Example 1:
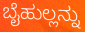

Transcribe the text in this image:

ಬೈಹುಲ್ಲನ್ನು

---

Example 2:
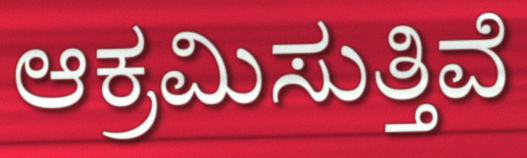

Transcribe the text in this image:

ಆಕ್ರಮಿಸುತ್ತಿವೆ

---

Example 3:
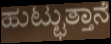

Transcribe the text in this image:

ಹುಟ್ಟುತ್ತಾನೆ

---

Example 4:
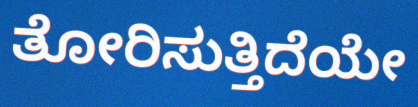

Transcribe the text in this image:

ತೋರಿಸುತ್ತಿದೆಯೇ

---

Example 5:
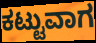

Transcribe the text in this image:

ಕಟ್ಟುವಾಗ